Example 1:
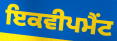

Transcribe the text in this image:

ਇਕਵੀਪਮੈਂਟ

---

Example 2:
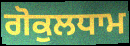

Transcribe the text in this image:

ਗੋਕੁਲਧਾਮ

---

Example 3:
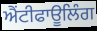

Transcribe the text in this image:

ਐਂਟੀਫਾਊਲਿੰਗ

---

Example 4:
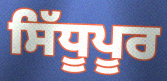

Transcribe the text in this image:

ਸਿੱਧੂਪੂਰ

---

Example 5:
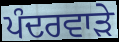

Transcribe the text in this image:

ਪੰਦਰਵਾੜੇ